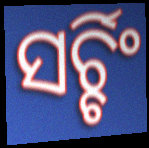
ସର୍ଚ୍ଚିଂ